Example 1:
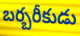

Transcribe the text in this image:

బర్బరీకుడు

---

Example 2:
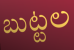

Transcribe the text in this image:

బుట్టల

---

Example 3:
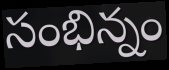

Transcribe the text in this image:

సంభిన్నం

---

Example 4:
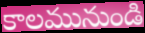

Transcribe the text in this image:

కాలమునుండి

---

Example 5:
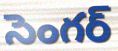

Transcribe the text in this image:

సెంగర్